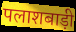
पलाशबाड़ी